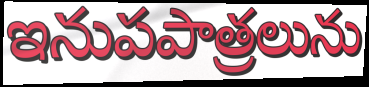
ఇనుపపాత్రలును